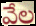
వేల